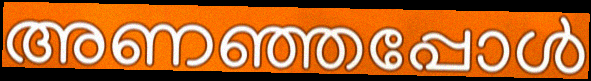
അണഞ്ഞപ്പോൾ